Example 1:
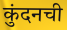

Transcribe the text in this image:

कुंदनची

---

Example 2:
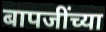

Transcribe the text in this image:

बापजींच्या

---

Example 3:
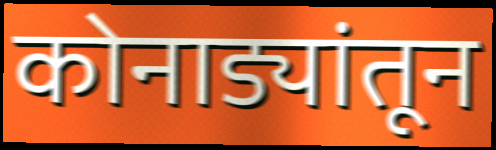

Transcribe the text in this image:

कोनाड्यांतून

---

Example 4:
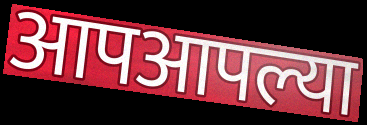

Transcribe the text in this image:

आपआपल्या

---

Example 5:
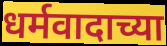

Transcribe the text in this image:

धर्मवादाच्या